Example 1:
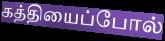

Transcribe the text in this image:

கத்தியைப்போல்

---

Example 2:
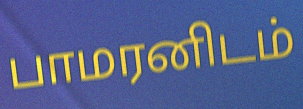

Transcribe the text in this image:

பாமரனிடம்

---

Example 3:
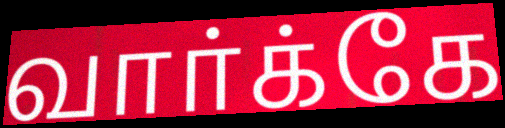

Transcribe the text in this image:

வார்க்கே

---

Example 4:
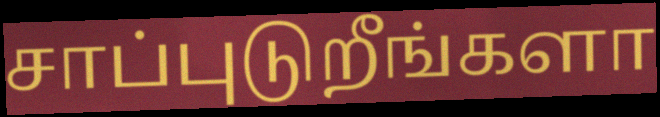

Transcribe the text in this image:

சாப்புடுறீங்களா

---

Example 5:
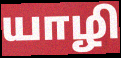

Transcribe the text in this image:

யாழி